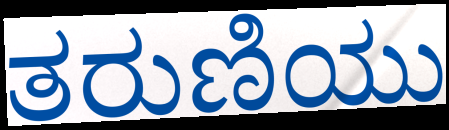
ತರುಣಿಯು